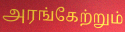
அரங்கேற்றும்